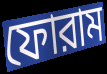
ফোরাম